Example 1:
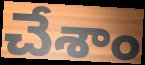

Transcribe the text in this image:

చేశాం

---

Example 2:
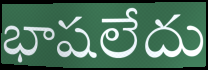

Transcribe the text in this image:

భాషలేదు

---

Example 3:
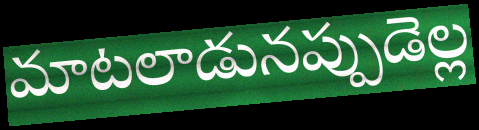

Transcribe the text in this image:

మాటలాడునప్పుడెల్ల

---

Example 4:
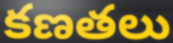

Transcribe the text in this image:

కణతలు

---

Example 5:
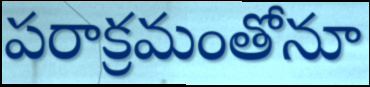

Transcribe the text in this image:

పరాక్రమంతోనూ